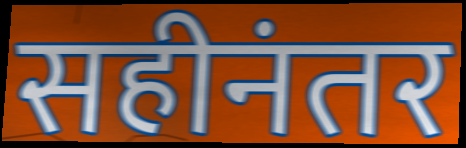
सहीनंतर